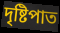
দৃষ্টিপাত